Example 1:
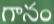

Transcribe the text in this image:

గానం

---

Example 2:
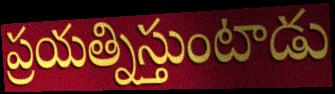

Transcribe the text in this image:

ప్రయత్నిస్తుంటాడు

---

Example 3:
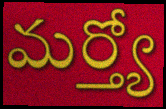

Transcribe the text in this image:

మర్త్యో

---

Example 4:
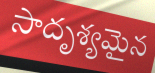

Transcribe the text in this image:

సాదృశ్యమైన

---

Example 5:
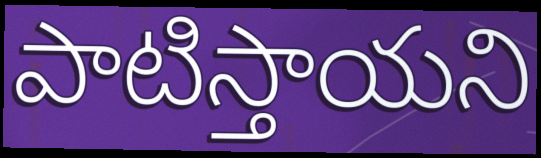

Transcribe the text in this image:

పాటిస్తాయని